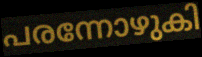
പരന്നോഴുകി